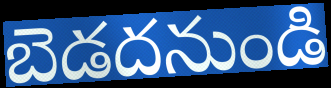
బెడదనుండి